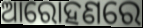
ଆରୋହଣରେ